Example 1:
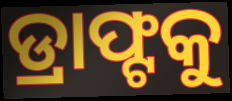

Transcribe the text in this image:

ଡ୍ରାଫ୍ଟକୁ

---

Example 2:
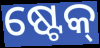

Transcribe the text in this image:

ଷ୍ଟେକ୍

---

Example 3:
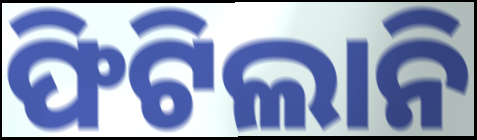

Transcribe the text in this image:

ଫିଟିଲାନି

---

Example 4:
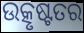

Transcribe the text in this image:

ଉତ୍କୃଷ୍ଟତର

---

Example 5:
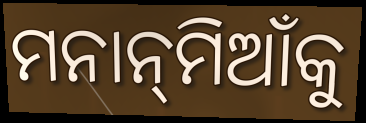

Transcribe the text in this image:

ମନାନ୍‌ମିଆଁକୁ